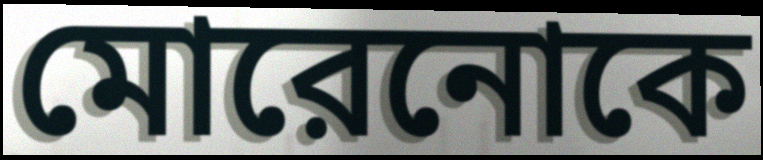
মোরেনোকে